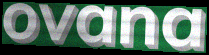
ovana